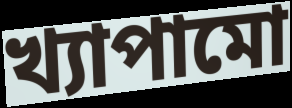
খ্যাপামো